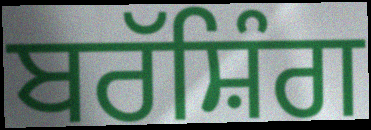
ਬਰੱਸ਼ਿੰਗ